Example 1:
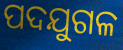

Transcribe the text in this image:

ପଦଯୁଗଳ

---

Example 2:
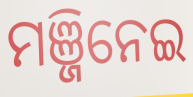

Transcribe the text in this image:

ମଞ୍ଜିନେଇ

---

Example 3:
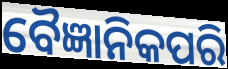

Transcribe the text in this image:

ବୈଜ୍ଞାନିକପରି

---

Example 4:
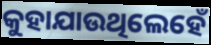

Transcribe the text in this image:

କୁହାଯାଉଥିଲେହେଁ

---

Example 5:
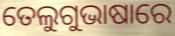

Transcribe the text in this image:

ତେଲୁଗୁଭାଷାରେ